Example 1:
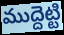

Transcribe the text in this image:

ముద్దెట్టి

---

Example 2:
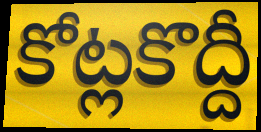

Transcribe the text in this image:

కోట్లకొద్దీ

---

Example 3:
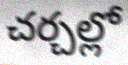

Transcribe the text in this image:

చర్చల్లో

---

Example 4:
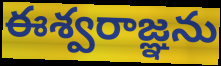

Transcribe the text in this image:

ఈశ్వరాజ్ఞను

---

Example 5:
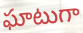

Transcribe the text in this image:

ఘాటుగా